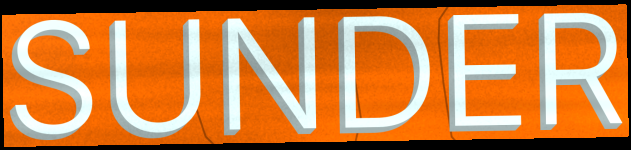
SUNDER